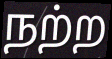
நற்ற